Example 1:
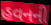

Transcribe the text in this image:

હવનની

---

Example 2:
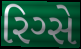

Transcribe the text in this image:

રિગ્સે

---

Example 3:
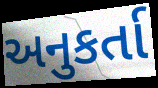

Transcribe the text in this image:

અનુકર્તા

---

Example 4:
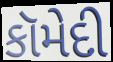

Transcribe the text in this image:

કૉમેદી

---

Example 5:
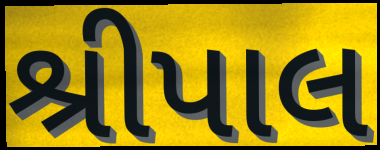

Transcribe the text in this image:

શ્રીપાલ